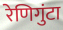
रेणिगुंटा